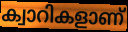
ക്വാറികളാണ്